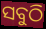
ସବୁଠି